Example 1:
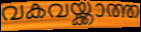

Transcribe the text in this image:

വകവയ്ക്കാത്ത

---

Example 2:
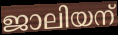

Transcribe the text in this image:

ജാലിയന്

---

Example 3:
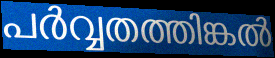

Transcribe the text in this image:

പർവ്വതത്തിങ്കൽ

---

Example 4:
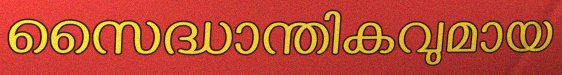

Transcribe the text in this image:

സൈദ്ധാന്തികവുമായ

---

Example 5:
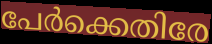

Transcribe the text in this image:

പേർക്കെതിരേ